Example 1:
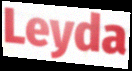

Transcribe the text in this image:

Leyda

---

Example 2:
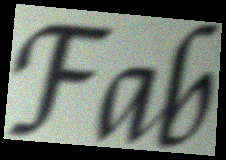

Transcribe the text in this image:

Fab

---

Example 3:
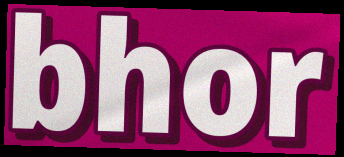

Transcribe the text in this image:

bhor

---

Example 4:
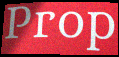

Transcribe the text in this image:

Prop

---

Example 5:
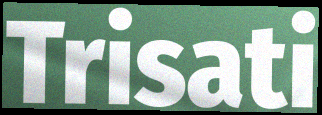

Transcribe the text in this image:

Trisati